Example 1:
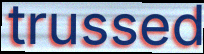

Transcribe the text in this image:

trussed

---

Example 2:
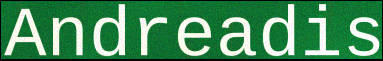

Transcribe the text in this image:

Andreadis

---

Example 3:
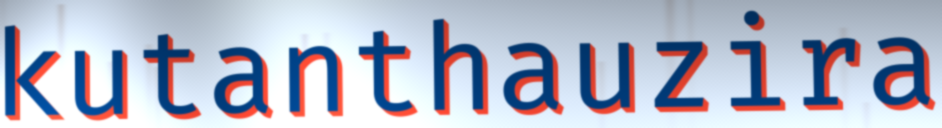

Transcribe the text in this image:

kutanthauzira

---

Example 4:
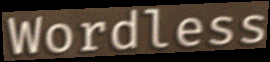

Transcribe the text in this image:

Wordless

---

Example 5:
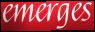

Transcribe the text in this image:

emerges